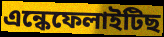
এন্কেফেলাইটিছ